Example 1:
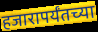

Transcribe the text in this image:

हजारापर्यंतच्या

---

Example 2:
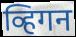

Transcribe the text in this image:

व्हिगन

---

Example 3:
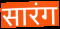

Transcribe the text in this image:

सारंग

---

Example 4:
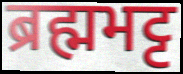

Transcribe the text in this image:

ब्रह्मभट्ट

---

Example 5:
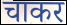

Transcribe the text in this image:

चाकर